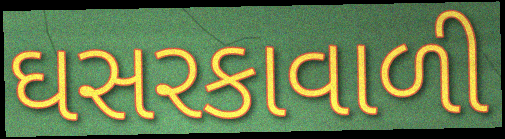
ઘસરકાવાળી